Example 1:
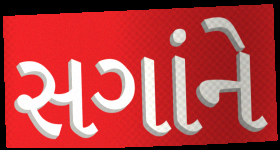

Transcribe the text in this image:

સગાંને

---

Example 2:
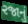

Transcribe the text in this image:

રજાનું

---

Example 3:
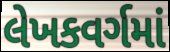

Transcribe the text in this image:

લેખકવર્ગમાં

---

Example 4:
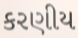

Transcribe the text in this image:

કરણીય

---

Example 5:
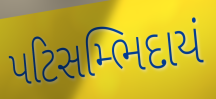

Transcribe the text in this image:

પટિસમ્ભિદાયં